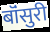
बॉंसुरी